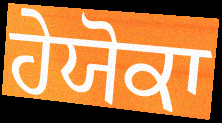
ਹੇਯੋਕਾ